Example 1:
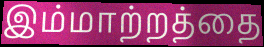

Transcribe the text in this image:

இம்மாற்றத்தை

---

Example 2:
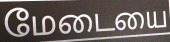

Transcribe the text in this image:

மேடையை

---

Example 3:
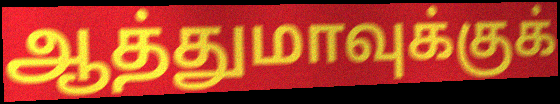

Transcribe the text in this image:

ஆத்துமாவுக்குக்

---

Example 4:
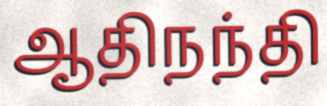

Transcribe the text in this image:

ஆதிநந்தி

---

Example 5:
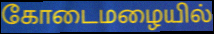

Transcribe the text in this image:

கோடைமழையில்